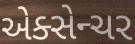
એક્સેન્ચર